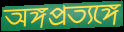
অঙ্গপ্রত্যঙ্গে